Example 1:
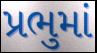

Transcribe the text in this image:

પ્રભુમાં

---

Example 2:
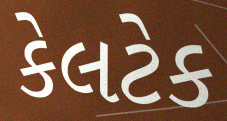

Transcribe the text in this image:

કેલટેક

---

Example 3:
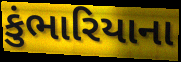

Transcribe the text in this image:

કુંભારિયાના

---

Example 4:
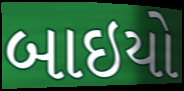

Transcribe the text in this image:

બાઇયો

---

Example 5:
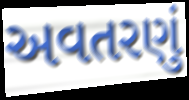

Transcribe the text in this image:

અવતરણું